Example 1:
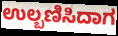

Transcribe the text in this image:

ಉಲ್ಬಣಿಸಿದಾಗ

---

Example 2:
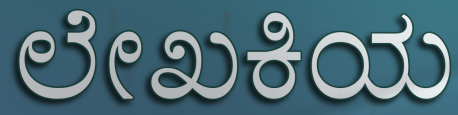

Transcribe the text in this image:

ಲೇಖಕಿಯ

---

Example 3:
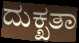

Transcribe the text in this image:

ದುಕ್ಖತಾ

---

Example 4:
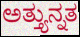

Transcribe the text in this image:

ಅತ್ತ್ಯುನ್ನತ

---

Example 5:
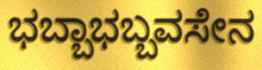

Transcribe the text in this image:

ಭಬ್ಬಾಭಬ್ಬವಸೇನ